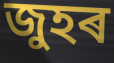
জুহৰ